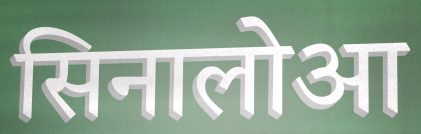
सिनालोआ